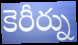
కెరీర్ను